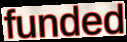
funded